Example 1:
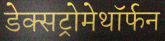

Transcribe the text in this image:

डेक्सट्रोमेथॉर्फन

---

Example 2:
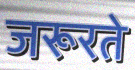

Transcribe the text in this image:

जरूरते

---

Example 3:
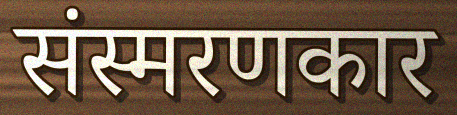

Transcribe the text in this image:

संस्मरणकार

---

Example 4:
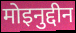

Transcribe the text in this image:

मोइनुद्दीन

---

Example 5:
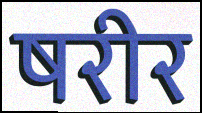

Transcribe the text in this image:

षरीर